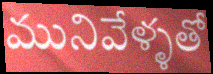
మునివేళ్ళతో